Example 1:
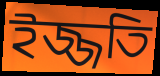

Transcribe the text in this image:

ইজ্জতি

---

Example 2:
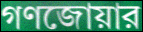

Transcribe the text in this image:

গণজোয়ার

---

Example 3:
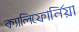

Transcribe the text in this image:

ক্যালিফোর্নিয়া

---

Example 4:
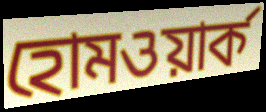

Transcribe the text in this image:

হোমওয়ার্ক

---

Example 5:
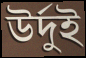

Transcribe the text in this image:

উর্দুই